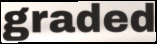
graded